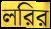
লরির